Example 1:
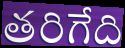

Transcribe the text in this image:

తరిగేది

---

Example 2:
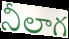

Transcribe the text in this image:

నీలాగ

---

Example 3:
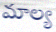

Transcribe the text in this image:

మాల్య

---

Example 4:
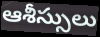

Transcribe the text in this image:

ఆశీస్సులు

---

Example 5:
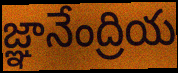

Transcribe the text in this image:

జ్ఞానేంద్రియ